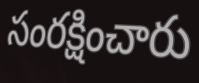
సంరక్షించారు